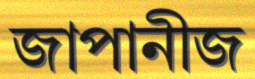
জাপানীজ